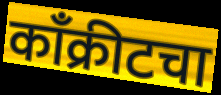
काँक्रीटचा